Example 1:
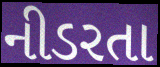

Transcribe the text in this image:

નીડરતા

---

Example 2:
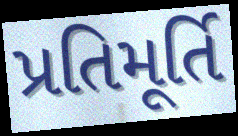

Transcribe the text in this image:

પ્રતિમૂર્તિ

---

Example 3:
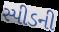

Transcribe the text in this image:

સ્પીડની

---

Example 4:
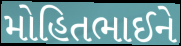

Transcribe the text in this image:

મોહિતભાઈને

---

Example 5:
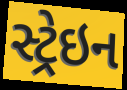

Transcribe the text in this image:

સ્ટ્રેઇન